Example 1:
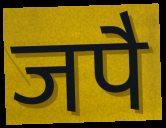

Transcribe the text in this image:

जपै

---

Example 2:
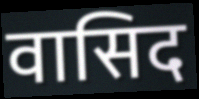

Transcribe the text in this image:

वासिद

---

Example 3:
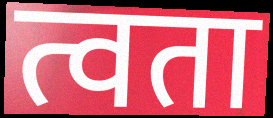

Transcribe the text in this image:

त्वता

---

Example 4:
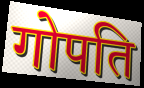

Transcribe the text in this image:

गोपति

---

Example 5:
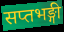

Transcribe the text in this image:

सप्तभङ्गी